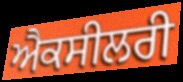
ਐਕਸੀਲਰੀ